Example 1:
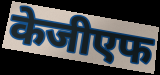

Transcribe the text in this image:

केजीएफ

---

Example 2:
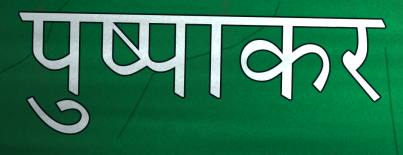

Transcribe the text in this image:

पुष्पाकर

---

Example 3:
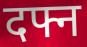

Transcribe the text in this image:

दफ्न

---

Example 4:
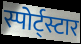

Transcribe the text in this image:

स्पोर्ट्स्टार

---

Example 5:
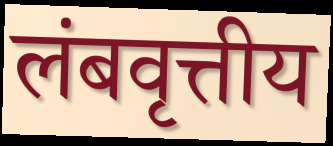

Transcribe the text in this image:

लंबवृत्तीय